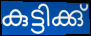
കുട്ടിക്കു്